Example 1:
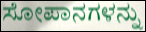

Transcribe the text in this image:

ಸೋಪಾನಗಳನ್ನು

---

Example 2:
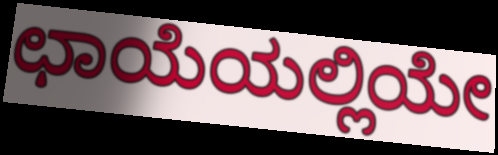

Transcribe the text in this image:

ಛಾಯೆಯಲ್ಲಿಯೇ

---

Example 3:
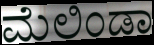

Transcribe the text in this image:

ಮೆಲಿಂಡಾ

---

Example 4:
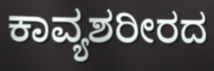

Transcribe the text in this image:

ಕಾವ್ಯಶರೀರದ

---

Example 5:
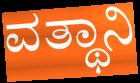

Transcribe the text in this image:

ವತ್ಥಾನಿ